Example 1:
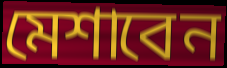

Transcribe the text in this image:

মেশাবেন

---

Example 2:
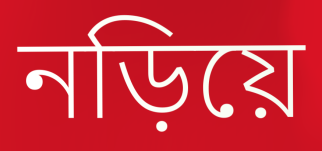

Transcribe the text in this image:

নড়িয়ে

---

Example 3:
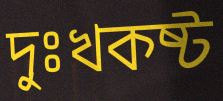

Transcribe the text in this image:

দুঃখকষ্ট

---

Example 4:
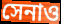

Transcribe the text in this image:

সেনাও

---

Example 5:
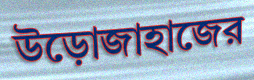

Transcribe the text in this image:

উড়োজাহাজের